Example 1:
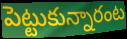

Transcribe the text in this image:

పెట్టుకున్నారంట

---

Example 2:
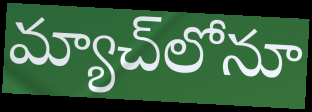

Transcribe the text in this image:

మ్యాచ్‌లోనూ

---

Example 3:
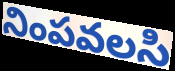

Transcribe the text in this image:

నింపవలసి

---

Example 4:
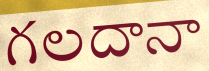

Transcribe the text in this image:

గలదానా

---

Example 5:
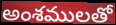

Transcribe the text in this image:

అంశములతో